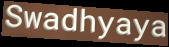
Swadhyaya